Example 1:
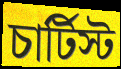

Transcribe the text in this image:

চার্টিস্ট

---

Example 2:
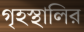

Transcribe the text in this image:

গৃহস্থালির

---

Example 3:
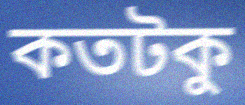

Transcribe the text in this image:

কতটকু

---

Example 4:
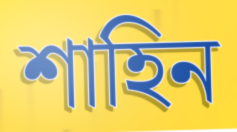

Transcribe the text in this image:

শাহিন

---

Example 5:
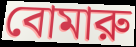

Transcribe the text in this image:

বোমারু